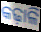
କଢ଼ାଳି